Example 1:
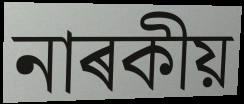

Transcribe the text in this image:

নাৰকীয়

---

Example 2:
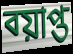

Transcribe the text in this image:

ব্য়াপ্ত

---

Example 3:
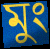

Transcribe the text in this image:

মুং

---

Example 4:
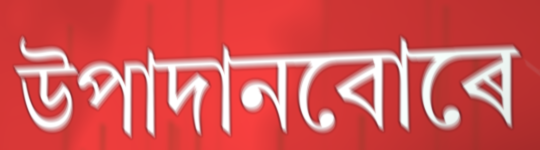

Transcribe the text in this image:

উপাদানবোৰে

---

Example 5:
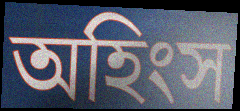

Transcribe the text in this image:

অহিংস